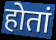
होतां